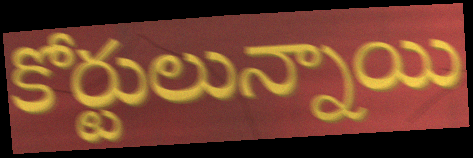
కోర్టులున్నాయి